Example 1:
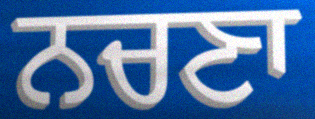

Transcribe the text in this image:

ਨਚਣਾ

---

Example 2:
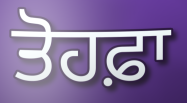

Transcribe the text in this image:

ਤੋਹਫ਼ਾ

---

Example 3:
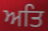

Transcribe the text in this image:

ਅਤਿ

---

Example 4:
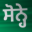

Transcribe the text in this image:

ਸੋਨ੍ਹੇ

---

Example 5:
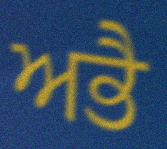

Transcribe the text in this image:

ਅਭੈ